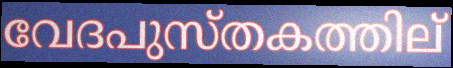
വേദപുസ്തകത്തില്